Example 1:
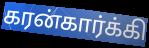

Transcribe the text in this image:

கரன்கார்க்கி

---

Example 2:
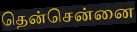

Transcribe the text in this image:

தென்சென்னை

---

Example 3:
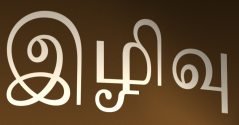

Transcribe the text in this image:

இழிவு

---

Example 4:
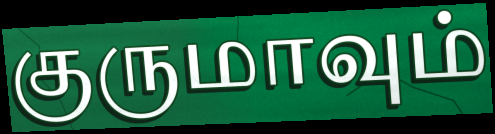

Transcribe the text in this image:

குருமாவும்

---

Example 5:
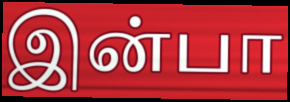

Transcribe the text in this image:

இன்பா